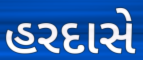
હરદાસે